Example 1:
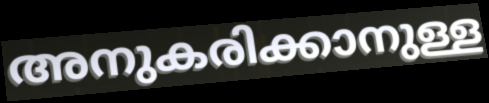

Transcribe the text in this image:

അനുകരിക്കാനുള്ള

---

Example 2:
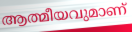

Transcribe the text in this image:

ആത്മീയവുമാണ്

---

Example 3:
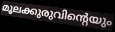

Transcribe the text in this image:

മൂലക്കുരുവിന്റെയും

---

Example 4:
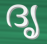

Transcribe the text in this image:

ദൃ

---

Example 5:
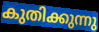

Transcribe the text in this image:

കുതിക്കുന്നു